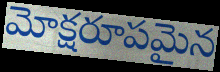
మోక్షరూపమైన